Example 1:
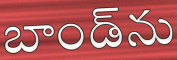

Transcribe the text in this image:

బాండ్‌ను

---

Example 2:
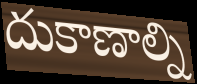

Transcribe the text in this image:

దుకాణాల్ని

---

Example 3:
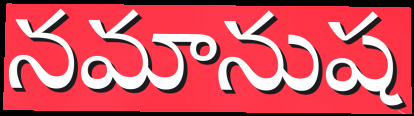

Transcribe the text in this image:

నమానుష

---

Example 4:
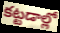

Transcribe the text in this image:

కట్టడాల్లో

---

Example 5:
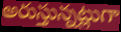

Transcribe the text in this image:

అరుస్తున్నట్లుగా